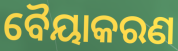
ବୈୟାକରଣ